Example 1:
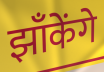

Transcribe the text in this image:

झाँकेंगे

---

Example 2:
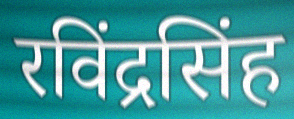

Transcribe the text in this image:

रविंद्रसिंह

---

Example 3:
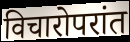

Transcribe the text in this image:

विचारोपरांत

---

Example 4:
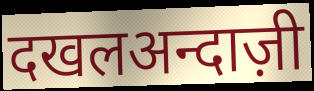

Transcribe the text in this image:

दखलअन्दाज़ी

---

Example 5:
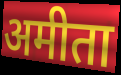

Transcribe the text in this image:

अमीता